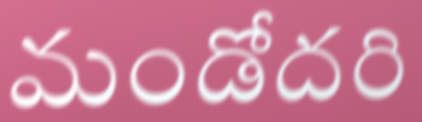
మండోదరి